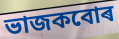
ভাজকবোৰ